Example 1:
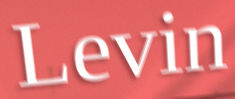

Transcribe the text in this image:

Levin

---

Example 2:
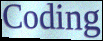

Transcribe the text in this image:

Coding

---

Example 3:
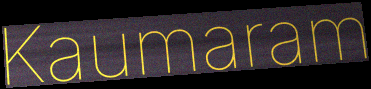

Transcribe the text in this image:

Kaumaram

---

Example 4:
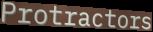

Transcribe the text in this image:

Protractors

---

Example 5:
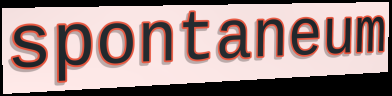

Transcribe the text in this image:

spontaneum